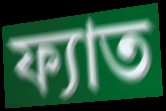
ফ্যাত